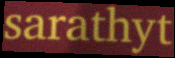
sarathyt